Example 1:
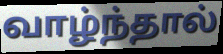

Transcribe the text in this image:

வாழ்ந்தால்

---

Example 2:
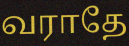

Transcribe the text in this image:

வராதே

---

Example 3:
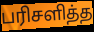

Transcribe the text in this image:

பரிசளித்த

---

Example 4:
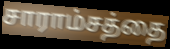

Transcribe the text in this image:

சாராம்சத்தை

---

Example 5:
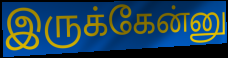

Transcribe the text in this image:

இருக்கேன்னு